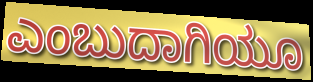
ಎಂಬುದಾಗಿಯೂ